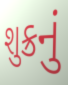
શુક્રનું